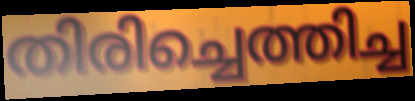
തിരിച്ചെത്തിച്ച